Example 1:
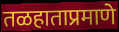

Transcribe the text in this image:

तळहाताप्रमाणे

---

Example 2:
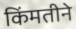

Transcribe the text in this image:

किंमतीने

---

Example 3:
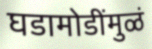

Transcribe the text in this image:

घडामोडींमुळं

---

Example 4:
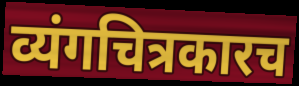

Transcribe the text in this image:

व्यंगचित्रकारच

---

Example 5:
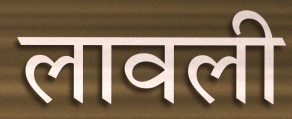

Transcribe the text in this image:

लावली